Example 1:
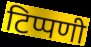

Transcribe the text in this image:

टिप्‍पणी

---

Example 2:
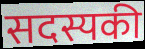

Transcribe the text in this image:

सदस्यकी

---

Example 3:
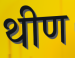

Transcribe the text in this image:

थीण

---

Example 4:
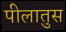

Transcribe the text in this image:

पीलातुस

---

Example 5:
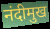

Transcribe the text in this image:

नंदीमुख